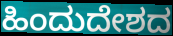
ಹಿಂದುದೇಶದ